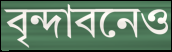
বৃন্দাবনেও